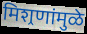
मिश्रणांमुळे